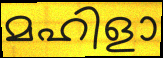
മഹിളാ